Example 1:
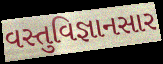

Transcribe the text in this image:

વસ્તુવિજ્ઞાનસાર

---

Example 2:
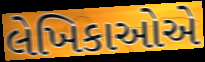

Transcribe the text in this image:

લેખિકાઓએ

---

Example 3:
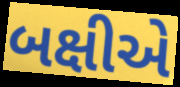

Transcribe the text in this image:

બક્ષીએ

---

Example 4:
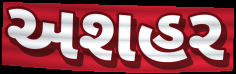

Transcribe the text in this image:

અશહર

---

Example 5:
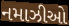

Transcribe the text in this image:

નમાઝીઓ